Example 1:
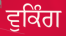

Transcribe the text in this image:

ਵੁਕਿੰਗ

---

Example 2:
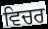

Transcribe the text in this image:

ਵਿਚਰ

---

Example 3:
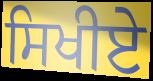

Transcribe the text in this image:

ਸਿਖੀਏ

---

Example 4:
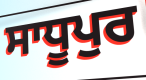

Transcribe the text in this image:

ਸਾਧੂਪੁਰ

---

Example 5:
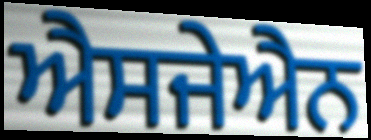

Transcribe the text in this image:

ਐਸਜੇਐਨ